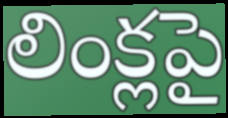
లింక్లపై